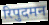
रिपुदमन